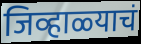
जिव्हाळ्याचं